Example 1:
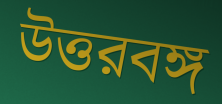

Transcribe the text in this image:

উত্তরবঙ্গ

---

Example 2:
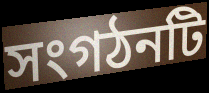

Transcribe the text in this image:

সংগঠনটি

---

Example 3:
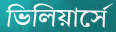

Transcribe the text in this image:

ভিলিয়ার্সে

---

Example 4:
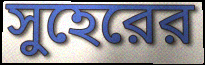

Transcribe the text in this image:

সুহেরের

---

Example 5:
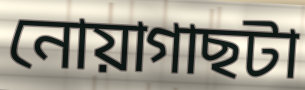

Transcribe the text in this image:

নোয়াগাছটা